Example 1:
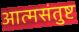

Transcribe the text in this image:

आत्मसंतुष्ट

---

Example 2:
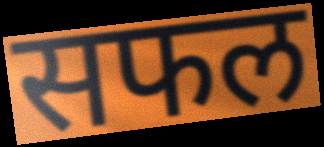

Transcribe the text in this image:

सफल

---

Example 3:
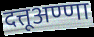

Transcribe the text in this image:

दत्तूअण्णा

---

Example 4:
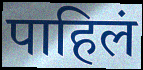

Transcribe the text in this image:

पाहिलं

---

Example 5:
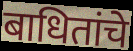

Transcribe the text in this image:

बाधितांचे